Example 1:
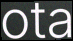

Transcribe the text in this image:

ota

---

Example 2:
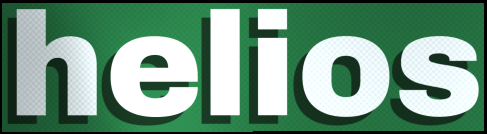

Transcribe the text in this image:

helios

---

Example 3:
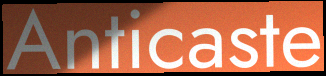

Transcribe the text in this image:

Anticaste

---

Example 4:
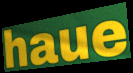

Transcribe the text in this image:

haue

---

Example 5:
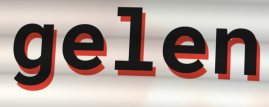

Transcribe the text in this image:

gelen